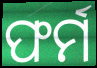
ଫର୍ମ